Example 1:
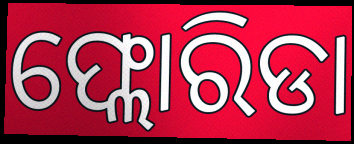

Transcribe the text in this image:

ଫ୍ଲୋରିଡା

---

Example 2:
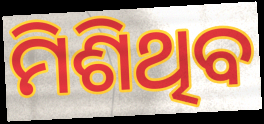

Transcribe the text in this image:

ମିଶିଥିବ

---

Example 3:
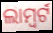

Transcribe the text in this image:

ଲାମ୍ବର୍ଟ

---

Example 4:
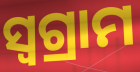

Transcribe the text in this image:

ସ୍ୱଗ୍ରାମ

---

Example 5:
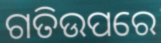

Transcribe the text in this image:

ଗତିଉପରେ